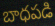
బాధపడి